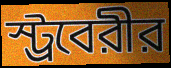
স্ট্রবেরীর